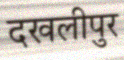
दखलीपुर